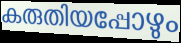
കരുതിയപ്പോഴും